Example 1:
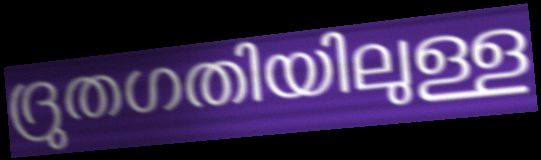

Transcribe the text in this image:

ദ്രുതഗതിയിലുള്ള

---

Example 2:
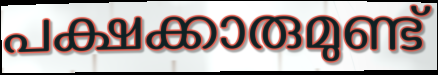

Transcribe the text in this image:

പക്ഷക്കാരുമുണ്ട്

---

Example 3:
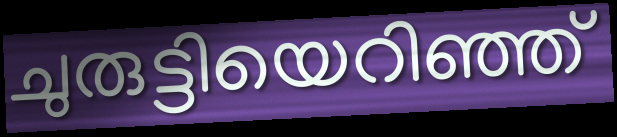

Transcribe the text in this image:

ചുരുട്ടിയെറിഞ്ഞ്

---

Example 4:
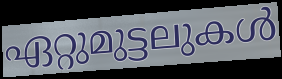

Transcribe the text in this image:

ഏറ്റുമുട്ടലുകൾ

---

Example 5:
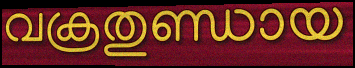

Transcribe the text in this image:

വക്രതുണ്ഡായ